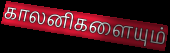
காலனிகளையும்